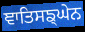
ਞਾਤਿਸਙ੍ਘੇਨ